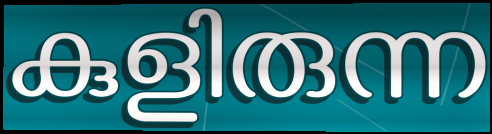
കുളിരുന്ന